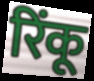
रिंकू